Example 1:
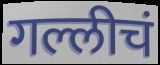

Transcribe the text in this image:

गल्लीचं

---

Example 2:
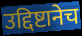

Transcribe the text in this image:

उद्दिष्टानेच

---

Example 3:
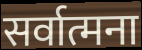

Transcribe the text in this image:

सर्वात्मना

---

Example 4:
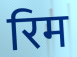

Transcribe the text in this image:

रिम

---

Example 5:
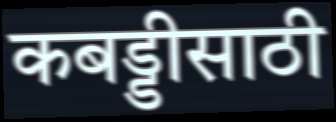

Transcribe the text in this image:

कबड्डीसाठी